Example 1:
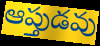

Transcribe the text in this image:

ఆప్తుడవు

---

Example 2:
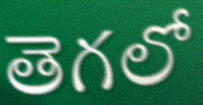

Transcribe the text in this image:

తెగలో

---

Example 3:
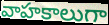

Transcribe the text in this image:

వాహకాలుగా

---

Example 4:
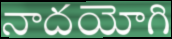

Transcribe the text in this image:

నాదయోగి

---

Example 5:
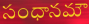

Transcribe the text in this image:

సంధానమౌ